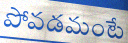
పోవడమంటే